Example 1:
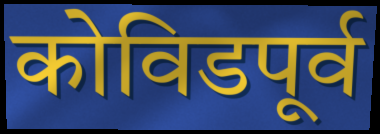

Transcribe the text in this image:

कोविडपूर्व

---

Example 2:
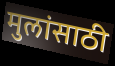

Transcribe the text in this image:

मुलांसाठी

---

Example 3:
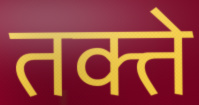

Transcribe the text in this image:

तक्ते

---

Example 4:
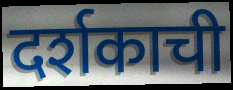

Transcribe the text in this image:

दर्शकाची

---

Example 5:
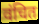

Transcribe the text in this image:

वंचित